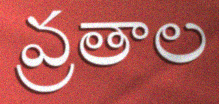
వ్రతాల